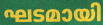
ഘടമായി